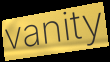
vanity